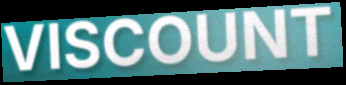
VISCOUNT